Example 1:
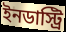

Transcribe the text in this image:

ইনডাস্ট্রি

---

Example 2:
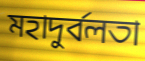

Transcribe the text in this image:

মহাদুর্বলতা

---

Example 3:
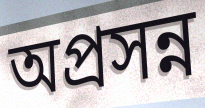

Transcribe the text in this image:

অপ্রসন্ন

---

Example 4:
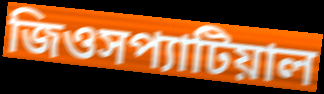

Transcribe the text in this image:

জিওসপ্যাটিয়াল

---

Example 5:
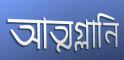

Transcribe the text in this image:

আত্মগ্লানি